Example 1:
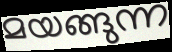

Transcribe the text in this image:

മയങ്ങുന്ന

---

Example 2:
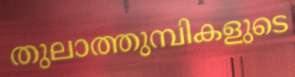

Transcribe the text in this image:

തുലാത്തുമ്പികളുടെ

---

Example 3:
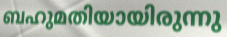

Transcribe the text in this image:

ബഹുമതിയായിരുന്നു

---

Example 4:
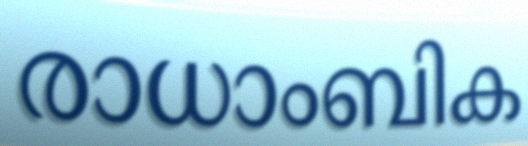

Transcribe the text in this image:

രാധാംബിക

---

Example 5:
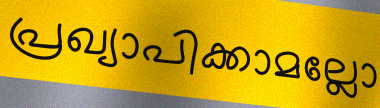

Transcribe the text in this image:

പ്രഖ്യാപിക്കാമല്ലോ